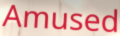
Amused